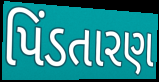
પિંડતારણ